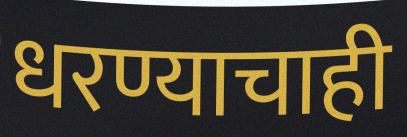
धरण्याचाही